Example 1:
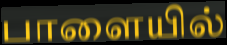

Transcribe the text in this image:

பாளையில்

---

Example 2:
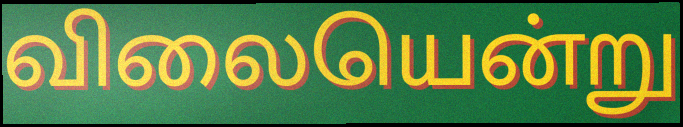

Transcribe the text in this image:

விலையென்று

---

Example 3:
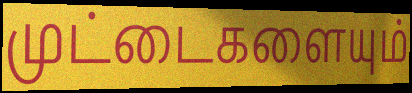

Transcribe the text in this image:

முட்டைகளையும்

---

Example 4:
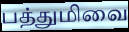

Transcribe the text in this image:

பத்துமிவை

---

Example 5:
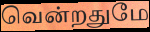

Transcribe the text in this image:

வென்றதுமே